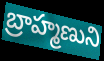
బ్రాహ్మణుని